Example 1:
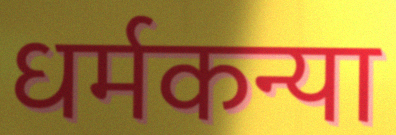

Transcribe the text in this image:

धर्मकन्या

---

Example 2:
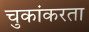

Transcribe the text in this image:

चुकांकरता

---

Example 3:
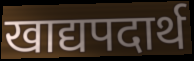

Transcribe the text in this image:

खाद्यपदार्थ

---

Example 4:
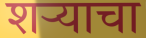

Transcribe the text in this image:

शर्‍याचा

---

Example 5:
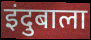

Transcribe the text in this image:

इंदुबाला